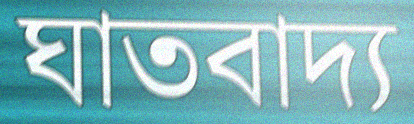
ঘাতবাদ্য